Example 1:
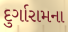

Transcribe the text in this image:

દુર્ગારામના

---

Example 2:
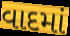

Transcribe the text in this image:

વાદમાં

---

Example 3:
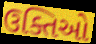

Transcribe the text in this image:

ઉક્તિઓ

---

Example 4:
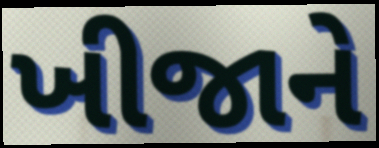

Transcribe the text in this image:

ખીજાને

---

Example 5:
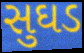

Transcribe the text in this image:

સુઘડ